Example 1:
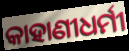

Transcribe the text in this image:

କାହାଣୀଧର୍ମୀ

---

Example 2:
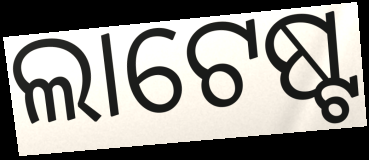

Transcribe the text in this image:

ଲାଟେଷ୍ଟ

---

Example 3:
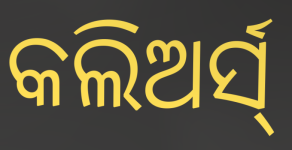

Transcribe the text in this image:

କଲିଅର୍ସ୍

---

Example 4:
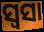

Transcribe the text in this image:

ସ୍ୱସା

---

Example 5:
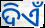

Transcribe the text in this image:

ଦିଏଁ